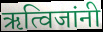
ऋत्विजांनी